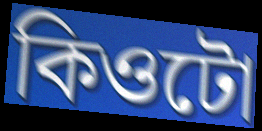
কিওটো